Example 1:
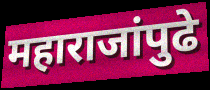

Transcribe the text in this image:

महाराजांपुढे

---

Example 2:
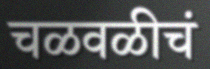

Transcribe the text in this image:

चळवळीचं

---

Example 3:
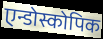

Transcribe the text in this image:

एन्डोस्कोपिक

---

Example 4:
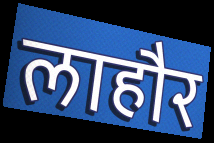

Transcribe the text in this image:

लाहौर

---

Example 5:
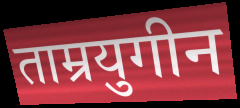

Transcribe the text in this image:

ताम्रयुगीन